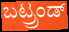
ಬಟ್ರ್ರಂಡ್